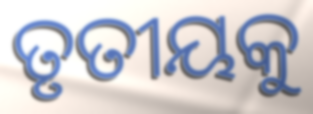
ତୃତୀୟକୁ